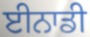
ਈਨਾਡੀ